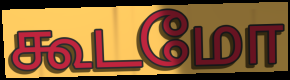
கூடமோ